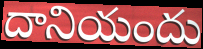
దానియందు